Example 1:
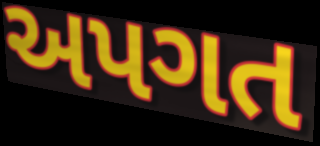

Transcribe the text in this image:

અપગત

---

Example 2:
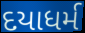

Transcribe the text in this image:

દયાધર્મ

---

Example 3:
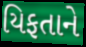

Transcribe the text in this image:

યિફતાને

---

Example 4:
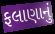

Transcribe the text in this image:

ફલાણાનું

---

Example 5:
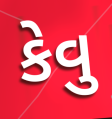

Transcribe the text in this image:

કેવુ